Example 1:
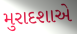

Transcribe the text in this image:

મુરાદશાએ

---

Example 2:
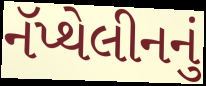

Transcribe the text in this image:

નૅપ્થેલીનનું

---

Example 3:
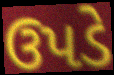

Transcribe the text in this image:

ઉપડે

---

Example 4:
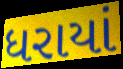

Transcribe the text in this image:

ધરાયાં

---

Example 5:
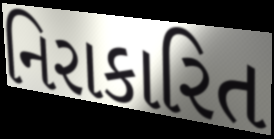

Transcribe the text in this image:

નિરાકારિત